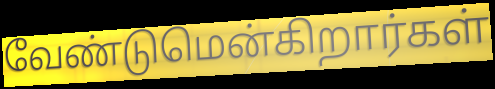
வேண்டுமென்கிறார்கள்